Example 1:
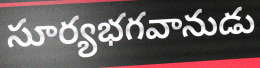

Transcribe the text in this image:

సూర్యభగవానుడు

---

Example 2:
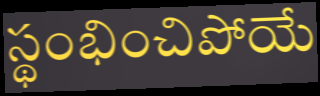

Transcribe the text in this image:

స్థంభించిపోయే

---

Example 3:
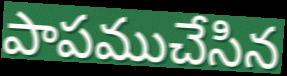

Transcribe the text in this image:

పాపముచేసిన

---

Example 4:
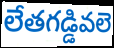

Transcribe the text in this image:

లేతగడ్డివలె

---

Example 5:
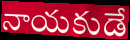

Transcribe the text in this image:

నాయకుడే